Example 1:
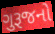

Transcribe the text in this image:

ગુરૂજનો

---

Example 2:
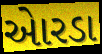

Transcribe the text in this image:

એારડા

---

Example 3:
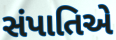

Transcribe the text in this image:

સંપાતિએ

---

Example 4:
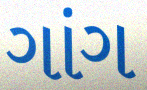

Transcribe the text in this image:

ગાંગ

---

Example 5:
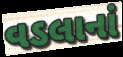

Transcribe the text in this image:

વડલાનાં